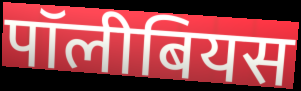
पॉलीबियस